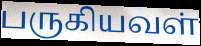
பருகியவள்